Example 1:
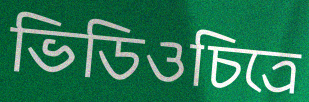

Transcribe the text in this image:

ভিডিওচিত্রে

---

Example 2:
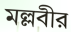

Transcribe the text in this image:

মল্লবীর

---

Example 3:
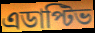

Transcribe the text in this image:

এডাপ্টিভ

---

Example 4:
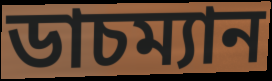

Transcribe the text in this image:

ডাচম্যান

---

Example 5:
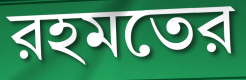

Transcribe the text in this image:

রহমতের